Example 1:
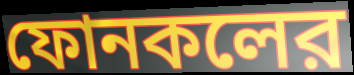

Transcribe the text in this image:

ফোনকলের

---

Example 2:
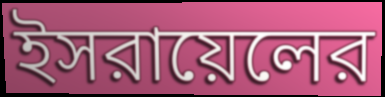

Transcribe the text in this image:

ইসরায়েলের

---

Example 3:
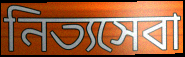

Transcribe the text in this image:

নিত্যসেবা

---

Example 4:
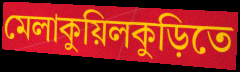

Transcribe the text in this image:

মেলাকুয়িলকুড়িতে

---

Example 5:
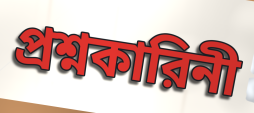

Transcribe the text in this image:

প্রশ্নকারিনী